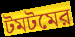
টমটমের